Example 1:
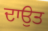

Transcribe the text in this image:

ਦਾਉਤ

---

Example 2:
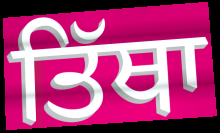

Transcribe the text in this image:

ਤਿੱਥਾ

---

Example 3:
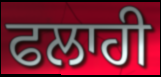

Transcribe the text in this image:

ਫਲਾਹੀ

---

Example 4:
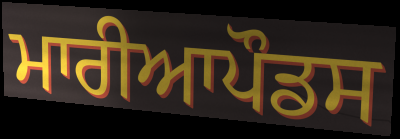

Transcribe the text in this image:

ਮਾਰੀਆਪੌਡਸ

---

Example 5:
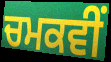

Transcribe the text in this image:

ਚਮਕਵੀਂ